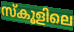
സ്കൂളിലെ